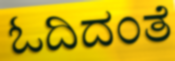
ಓದಿದಂತೆ